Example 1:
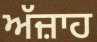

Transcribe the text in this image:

ਅੱਜ਼ਾਹ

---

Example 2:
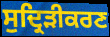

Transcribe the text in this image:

ਸੁਦ੍ਰਿੜੀਕਰਣ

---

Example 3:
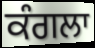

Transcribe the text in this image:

ਕੰਗਲਾ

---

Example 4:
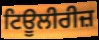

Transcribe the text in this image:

ਟਿਊਲੀਰੀਜ਼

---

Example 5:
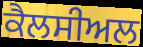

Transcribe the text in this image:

ਕੈਲਸੀਅਲ